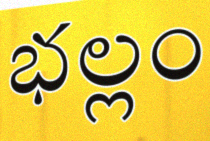
భల్లం